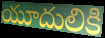
యూదులికి